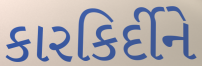
કારકિર્દીને